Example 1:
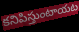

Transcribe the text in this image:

కనిపిస్తుంటాయట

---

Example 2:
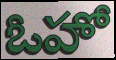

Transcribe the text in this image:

ఓహో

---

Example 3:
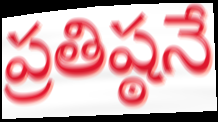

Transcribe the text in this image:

ప్రతిష్ఠనే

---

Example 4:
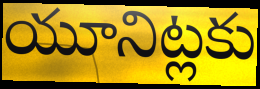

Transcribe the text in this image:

యూనిట్లకు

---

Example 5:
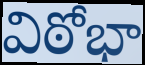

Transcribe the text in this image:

విఠోభా